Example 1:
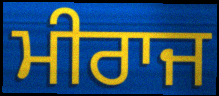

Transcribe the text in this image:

ਮੀਰਾਜ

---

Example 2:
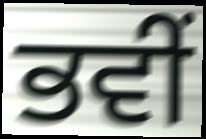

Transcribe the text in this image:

ਭਵੀਂ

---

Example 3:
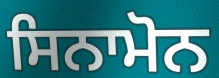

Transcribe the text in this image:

ਸਿਨਾਮੋਨ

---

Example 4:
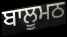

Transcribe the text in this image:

ਬਾਲੂਮਠ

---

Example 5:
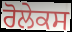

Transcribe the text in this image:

ਰੋਲੇਕਸ